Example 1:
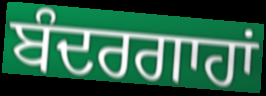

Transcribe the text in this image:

ਬੰਦਰਗਾਹਾਂ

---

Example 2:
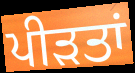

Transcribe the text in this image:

ਪੀੜਤਾਂ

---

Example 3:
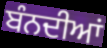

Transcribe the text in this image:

ਬੰਨਦੀਆਂ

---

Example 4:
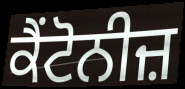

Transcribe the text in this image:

ਕੈਂਟੋਨੀਜ਼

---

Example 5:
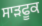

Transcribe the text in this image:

ਸਾੜਫੂਕ